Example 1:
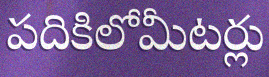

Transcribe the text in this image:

పదికిలోమీటర్లు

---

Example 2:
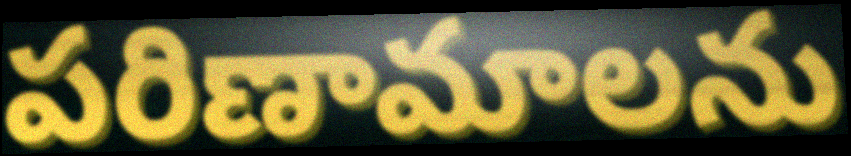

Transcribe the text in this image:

పరిణామాలను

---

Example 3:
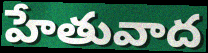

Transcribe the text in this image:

హేతువాద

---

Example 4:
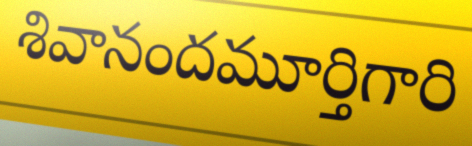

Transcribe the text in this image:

శివానందమూర్తిగారి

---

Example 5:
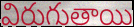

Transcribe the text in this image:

విరుగుతాయి